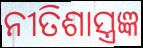
ନୀତିଶାସ୍ତ୍ରଜ୍ଞ